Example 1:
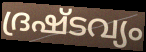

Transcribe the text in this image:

ദ്രഷ്ടവ്യം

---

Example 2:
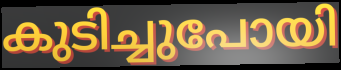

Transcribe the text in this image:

കുടിച്ചുപോയി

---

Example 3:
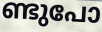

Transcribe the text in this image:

ണ്ടുപോ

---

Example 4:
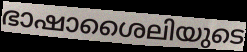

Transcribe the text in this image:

ഭാഷാശൈലിയുടെ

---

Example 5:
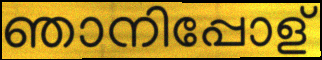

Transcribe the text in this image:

ഞാനിപ്പോള്